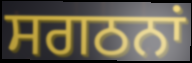
ਸਗਠਨਾਂ